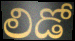
లిడో